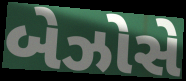
બેઝોસે